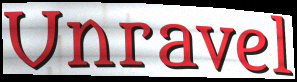
Unravel